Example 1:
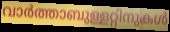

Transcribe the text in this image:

വാർത്താബുള്ളറ്റിനുകൾ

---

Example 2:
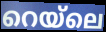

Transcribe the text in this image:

റെയ്ലെ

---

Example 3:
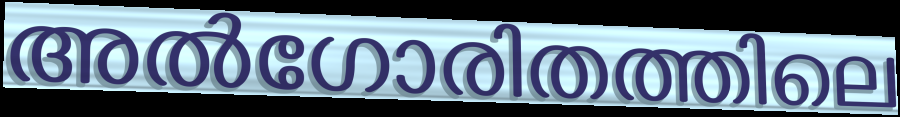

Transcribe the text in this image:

അൽഗോരിതത്തിലെ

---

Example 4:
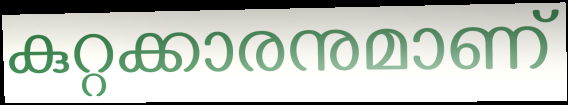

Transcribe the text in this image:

കുറ്റക്കാരനുമാണ്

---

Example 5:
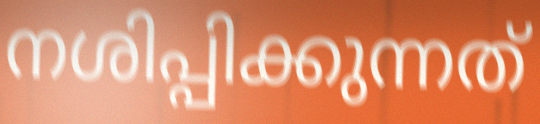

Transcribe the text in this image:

നശിപ്പിക്കുന്നത്